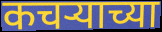
कचर्‍याच्या